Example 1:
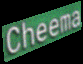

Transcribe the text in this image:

Cheema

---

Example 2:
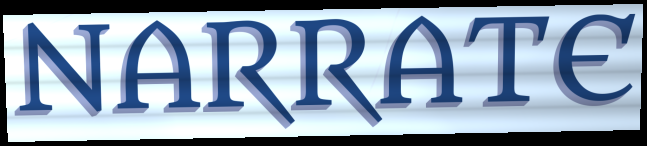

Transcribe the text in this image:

NARRATE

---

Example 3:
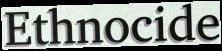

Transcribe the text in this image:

Ethnocide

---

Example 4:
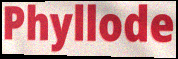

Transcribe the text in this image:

Phyllode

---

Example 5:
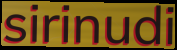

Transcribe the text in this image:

sirinudi